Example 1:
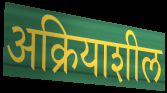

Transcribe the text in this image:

अक्रियाशील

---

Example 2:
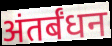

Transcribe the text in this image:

अंतर्बंधन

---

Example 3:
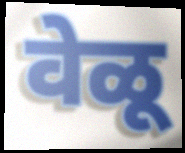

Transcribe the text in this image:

वेळू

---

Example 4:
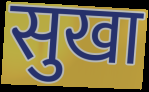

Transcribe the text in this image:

सुखा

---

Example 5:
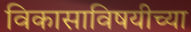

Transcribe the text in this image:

विकासाविषयीच्या